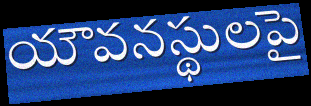
యౌవనస్థులపై